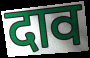
दाव